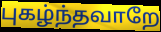
புகழ்ந்தவாறே